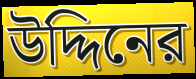
উদ্দিনের